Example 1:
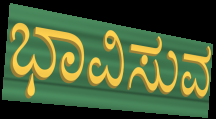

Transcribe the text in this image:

ಭಾವಿಸುವ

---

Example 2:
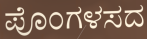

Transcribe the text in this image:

ಪೊಂಗಳಸದ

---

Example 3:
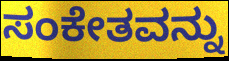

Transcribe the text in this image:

ಸಂಕೇತವನ್ನು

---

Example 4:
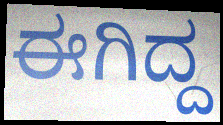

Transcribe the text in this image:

ಈಗಿದ್ದ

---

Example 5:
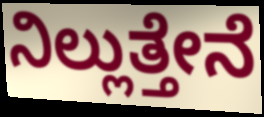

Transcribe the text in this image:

ನಿಲ್ಲುತ್ತೇನೆ